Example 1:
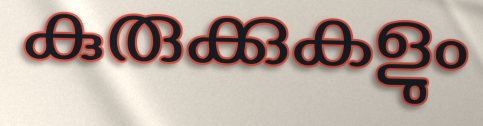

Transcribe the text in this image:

കുരുക്കുകളും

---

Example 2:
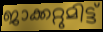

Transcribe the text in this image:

ജാക്കറ്റുമിട്ട്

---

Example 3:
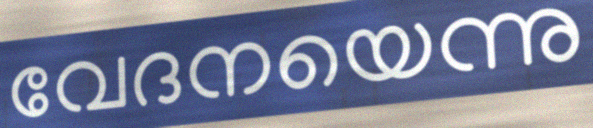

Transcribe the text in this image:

വേദനയെന്നു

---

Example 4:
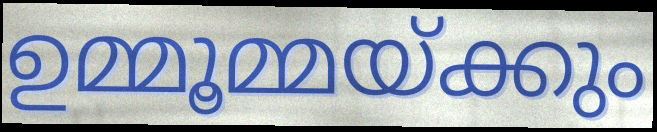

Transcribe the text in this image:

ഉമ്മൂമ്മയ്ക്കും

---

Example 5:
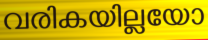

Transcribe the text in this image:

വരികയില്ലയോ